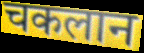
चकलान